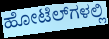
ಹೋಟೆಲ್‍ಗಳಲ್ಲಿ